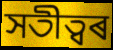
সতীত্বৰ